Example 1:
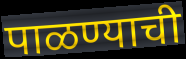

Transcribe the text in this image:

पाळण्याची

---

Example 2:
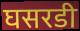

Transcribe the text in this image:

घसरडी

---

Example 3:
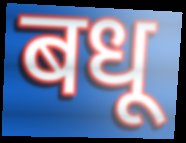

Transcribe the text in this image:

बधू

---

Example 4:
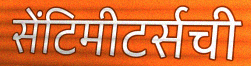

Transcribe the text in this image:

सेंटिमीटर्सची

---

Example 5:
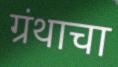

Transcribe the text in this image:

ग्रंथाचा